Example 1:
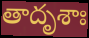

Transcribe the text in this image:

తాదృశాః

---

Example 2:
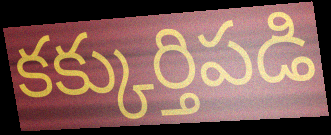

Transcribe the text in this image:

కక్కుర్తిపడి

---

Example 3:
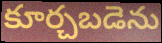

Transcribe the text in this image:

కూర్చబడెను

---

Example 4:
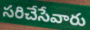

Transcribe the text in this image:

సరిచేసేవారు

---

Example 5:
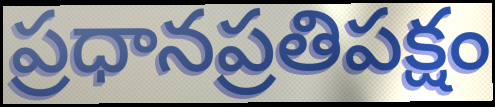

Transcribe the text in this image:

ప్రధానప్రతిపక్షం